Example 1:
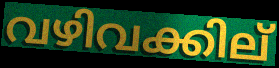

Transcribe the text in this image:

വഴിവക്കില്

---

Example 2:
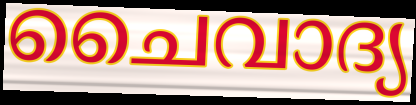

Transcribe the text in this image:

ചൈവാദ്യ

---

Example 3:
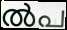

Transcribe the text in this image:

ൽപ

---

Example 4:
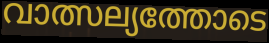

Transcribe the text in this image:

വാത്സല്യത്തോടെ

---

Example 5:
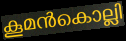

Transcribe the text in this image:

കൂമൻകൊല്ലി